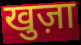
खुज़ा